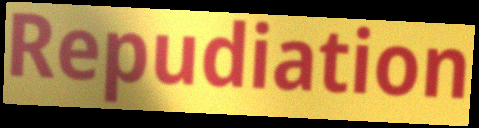
Repudiation